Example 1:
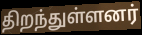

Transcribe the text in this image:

திறந்துள்ளனர்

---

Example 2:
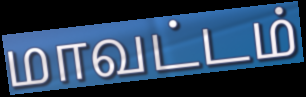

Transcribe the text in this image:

மாவட்டம்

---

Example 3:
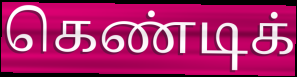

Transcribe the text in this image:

கெண்டிக்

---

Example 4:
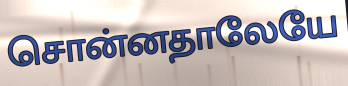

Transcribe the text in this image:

சொன்னதாலேயே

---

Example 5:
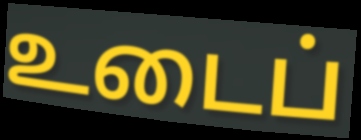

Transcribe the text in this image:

உடைப்